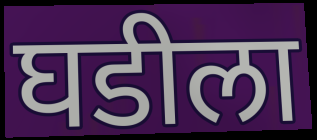
घडीला